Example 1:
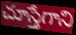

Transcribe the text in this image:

చూస్తేగాని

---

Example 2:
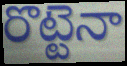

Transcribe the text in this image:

రొట్టెనా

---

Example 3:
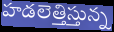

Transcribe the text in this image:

హడలెత్తిస్తున్న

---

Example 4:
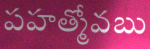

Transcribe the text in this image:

పహత్మోవబు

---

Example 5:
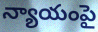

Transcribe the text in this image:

న్యాయంపై